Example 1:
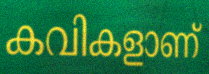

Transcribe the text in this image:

കവികളാണ്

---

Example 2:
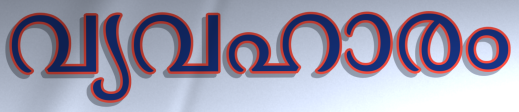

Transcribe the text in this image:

വ്യവഹാരം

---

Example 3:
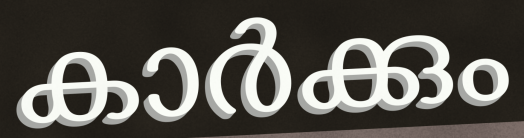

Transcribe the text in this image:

കാർക്കും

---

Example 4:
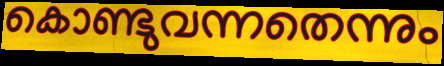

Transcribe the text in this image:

കൊണ്ടുവന്നതെന്നും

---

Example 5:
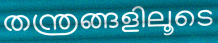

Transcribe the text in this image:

തന്ത്രങ്ങളിലൂടെ